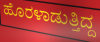
ಹೊರಳಾಡುತ್ತಿದ್ದ